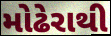
મોઢેરાથી